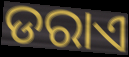
ଡରାଏ